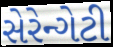
સેરેન્ગેટી